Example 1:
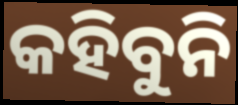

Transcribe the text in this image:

କହିବୁନି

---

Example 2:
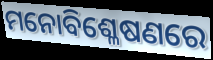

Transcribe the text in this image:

ମନୋବିଶ୍ଳେଷଣରେ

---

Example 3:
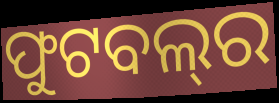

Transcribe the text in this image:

ଫୁଟବଲ୍‍ର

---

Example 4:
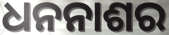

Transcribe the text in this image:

ଧନନାଶର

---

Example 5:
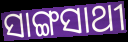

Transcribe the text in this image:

ସାଙ୍ଗସାଥୀ